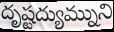
దృష్టద్యుమ్నుని